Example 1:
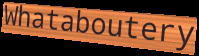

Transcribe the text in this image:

Whataboutery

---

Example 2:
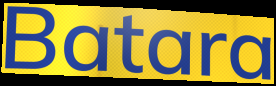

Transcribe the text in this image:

Batara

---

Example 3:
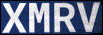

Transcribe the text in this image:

XMRV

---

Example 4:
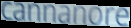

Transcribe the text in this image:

cannanore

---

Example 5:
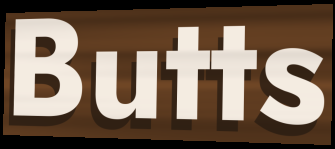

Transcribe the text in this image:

Butts